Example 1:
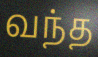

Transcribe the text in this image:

வந்த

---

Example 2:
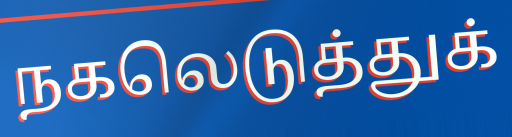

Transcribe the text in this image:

நகலெடுத்துக்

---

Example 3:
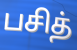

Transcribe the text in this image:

பசித்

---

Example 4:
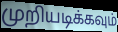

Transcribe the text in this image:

முறியடிக்கவும்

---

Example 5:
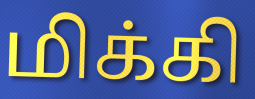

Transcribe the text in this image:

மிக்கி